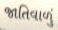
જાતિવાળું